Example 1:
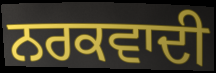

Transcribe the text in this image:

ਨਰਕਵਾਦੀ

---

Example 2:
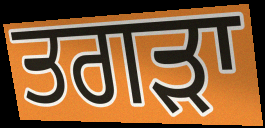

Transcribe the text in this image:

ਤਗੜਾ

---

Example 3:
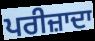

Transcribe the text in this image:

ਪਰੀਜ਼ਾਦਾ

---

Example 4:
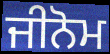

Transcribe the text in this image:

ਜੀਨੋਮ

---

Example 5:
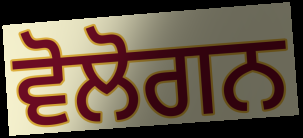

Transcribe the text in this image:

ਵੋਲੋਗਨ